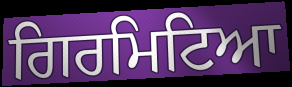
ਗਿਰਮਿਟਿਆ